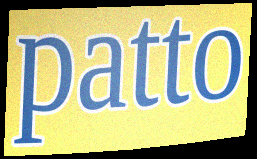
patto